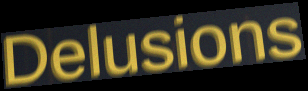
Delusions